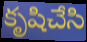
కృషిచేసి